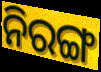
ନିରଙ୍ଗ